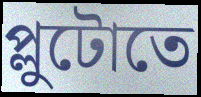
প্লুটোতে